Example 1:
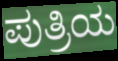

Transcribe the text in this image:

ಪುತ್ರಿಯ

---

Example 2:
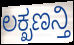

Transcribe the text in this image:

ಲಕ್ಖಣನ್ತಿ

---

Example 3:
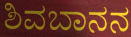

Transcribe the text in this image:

ಶಿವಬಾನನ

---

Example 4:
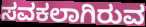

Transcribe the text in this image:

ಸವಕಲಾಗಿರುವ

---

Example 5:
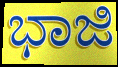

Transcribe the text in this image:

ಭಾಜಿ